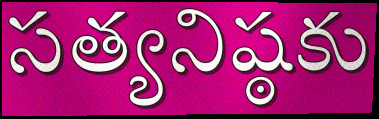
సత్యనిష్ఠకు